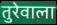
तुरेवाला